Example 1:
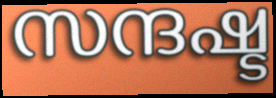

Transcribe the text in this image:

സന്ദഷ്ട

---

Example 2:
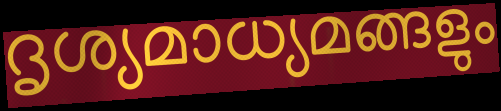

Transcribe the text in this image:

ദൃശ്യമാധ്യമങ്ങളും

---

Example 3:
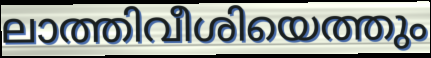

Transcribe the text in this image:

ലാത്തിവീശിയെത്തും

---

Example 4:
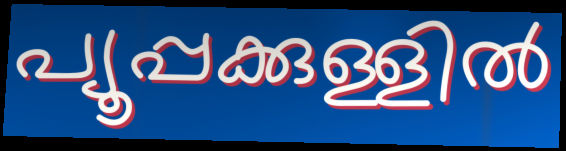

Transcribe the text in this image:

പ്യൂപ്പക്കുള്ളിൽ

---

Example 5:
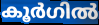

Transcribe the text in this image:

കൂർഗിൽ